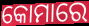
କୋମାରେ